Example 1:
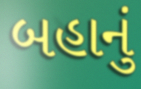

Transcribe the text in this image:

બહાનું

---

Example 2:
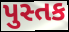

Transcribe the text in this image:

પુસ્તક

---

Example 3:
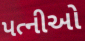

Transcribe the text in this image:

પત્નીઓ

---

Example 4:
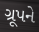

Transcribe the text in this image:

ગ્રૂપને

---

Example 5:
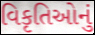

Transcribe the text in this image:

વિકૃતિઓનું